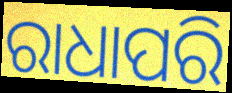
ରାଧାପରି